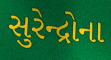
સુરેન્દ્રોના